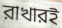
রাখারই